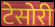
टेसोरी